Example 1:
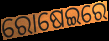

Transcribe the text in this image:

ରୋଷେଇରେ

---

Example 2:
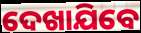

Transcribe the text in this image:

ଦେଖାଯିବେ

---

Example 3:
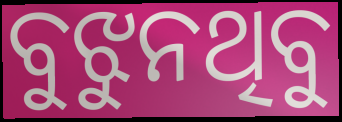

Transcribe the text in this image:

ବୁଝୁନଥିବୁ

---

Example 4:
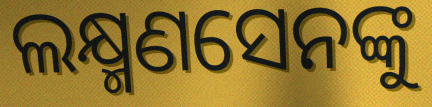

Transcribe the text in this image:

ଲକ୍ଷ୍ମଣସେନଙ୍କୁ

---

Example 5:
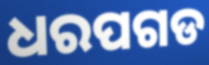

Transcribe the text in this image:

ଧରପଗଡ